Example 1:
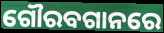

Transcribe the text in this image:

ଗୌରବଗାନରେ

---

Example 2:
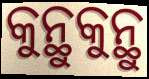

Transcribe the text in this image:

କୁନ୍ଥୁକୁନ୍ଥୁ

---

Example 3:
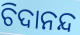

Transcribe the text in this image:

ଚିଦାନନ୍ଦ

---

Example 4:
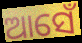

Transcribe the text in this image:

ଆସେଁ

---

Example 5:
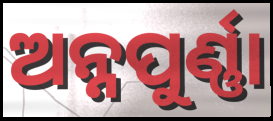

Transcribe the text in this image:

ଅନ୍ନପୁର୍ଣ୍ଣା